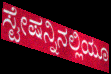
ಸ್ಟೇಷನ್ನಿನಲ್ಲಿಯೂ